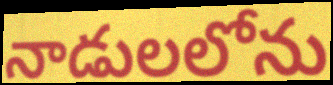
నాడులలోను